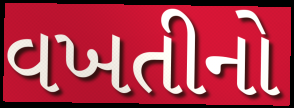
વખતીનો